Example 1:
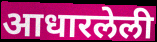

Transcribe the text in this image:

आधारलेली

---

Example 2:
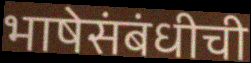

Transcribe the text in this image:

भाषेसंबंधीची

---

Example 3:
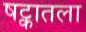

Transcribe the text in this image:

षट्कातला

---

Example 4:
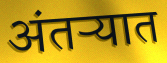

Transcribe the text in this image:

अंतऱ्यात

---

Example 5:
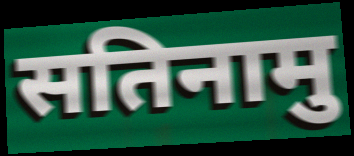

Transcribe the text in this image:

सतिनामु